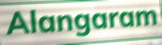
Alangaram